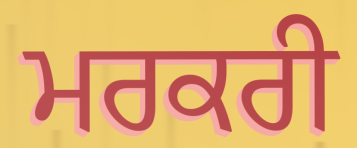
ਮਰਕਰੀ